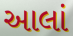
આલાં